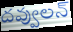
దవ్వులన్